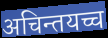
अचिन्तयच्च